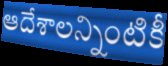
ఆదేశాలన్నింటికీ